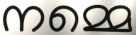
നമ്മെ